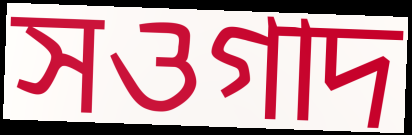
সওগাদ